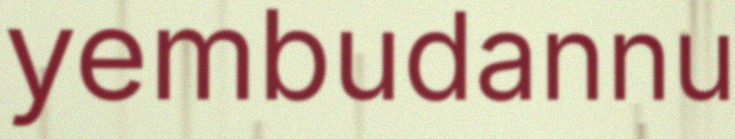
yembudannu